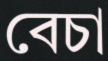
বেচা